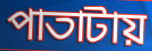
পাতাটায়